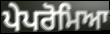
ਪੇਪਰੋਮਿਆ